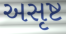
અસૃષ્ટ